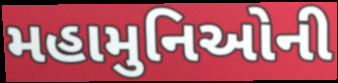
મહામુનિઓની